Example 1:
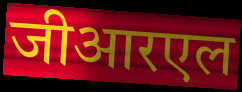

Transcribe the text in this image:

जीआरएल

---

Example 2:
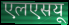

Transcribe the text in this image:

एलएसयू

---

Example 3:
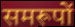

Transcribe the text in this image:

समरूपों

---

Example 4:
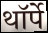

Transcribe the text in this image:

थॉर्पे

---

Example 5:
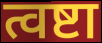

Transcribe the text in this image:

त्वष्टा